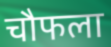
चौफला